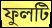
ফুলটি